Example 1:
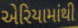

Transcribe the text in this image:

એરિયામાંથી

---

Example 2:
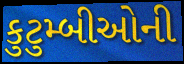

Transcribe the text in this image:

કુટુમ્બીઓની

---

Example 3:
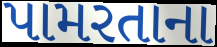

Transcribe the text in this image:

પામરતાના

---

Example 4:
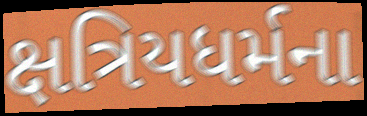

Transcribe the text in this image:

ક્ષત્રિયધર્મના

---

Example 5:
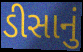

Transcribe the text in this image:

ડીસાનું